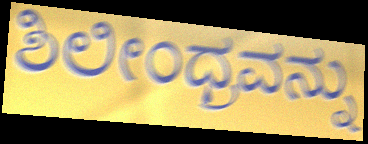
ಶಿಲೀಂಧ್ರವನ್ನು